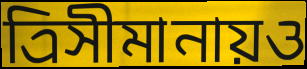
ত্রিসীমানায়ও